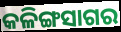
କଳିଙ୍ଗସାଗର